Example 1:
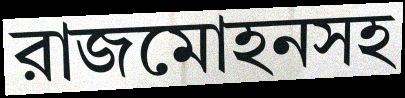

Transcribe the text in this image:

রাজমোহনসহ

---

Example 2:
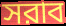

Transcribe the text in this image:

সরাব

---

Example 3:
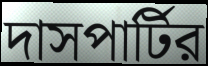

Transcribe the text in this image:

দাসপার্টির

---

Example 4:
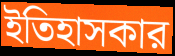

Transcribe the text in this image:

ইতিহাসকার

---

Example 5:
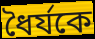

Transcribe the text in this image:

ধৈর্যকে